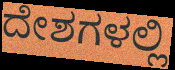
ದೇಶಗಳಲ್ಲಿ